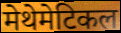
मेथेमेटिकल